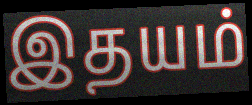
இதயம்